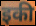
इकी